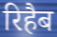
रिहैब